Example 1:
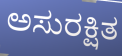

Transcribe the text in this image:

ಅಸುರಕ್ಷಿತ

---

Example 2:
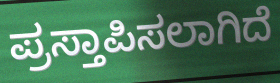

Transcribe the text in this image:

ಪ್ರಸ್ತಾಪಿಸಲಾಗಿದೆ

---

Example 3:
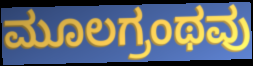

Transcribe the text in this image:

ಮೂಲಗ್ರಂಥವು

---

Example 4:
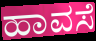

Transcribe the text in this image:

ಹಾವಸೆ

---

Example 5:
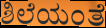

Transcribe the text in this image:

ಶಿಲೆಯಂತೆ